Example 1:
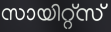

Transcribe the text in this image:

സായിറ്റ്സ്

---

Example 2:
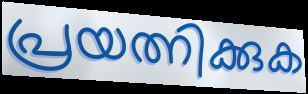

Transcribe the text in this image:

പ്രയത്നിക്കുക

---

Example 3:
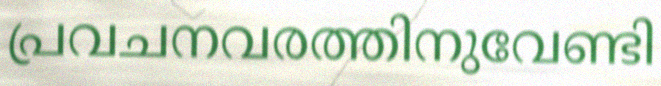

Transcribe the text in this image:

പ്രവചനവരത്തിനുവേണ്ടി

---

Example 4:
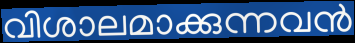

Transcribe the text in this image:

വിശാലമാക്കുന്നവൻ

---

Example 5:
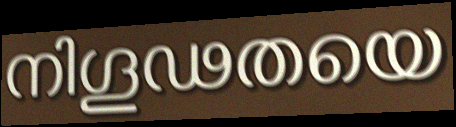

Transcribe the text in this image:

നിഗൂഢതയെ